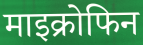
माइक्रोफिन